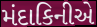
મંદાકિનીએ